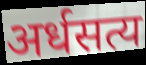
अर्धसत्य